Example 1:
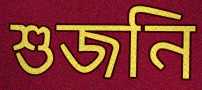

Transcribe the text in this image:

শুজনি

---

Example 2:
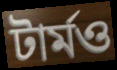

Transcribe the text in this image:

টার্মও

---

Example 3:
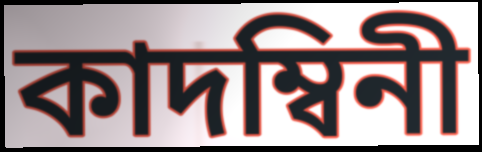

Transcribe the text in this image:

কাদম্বিনী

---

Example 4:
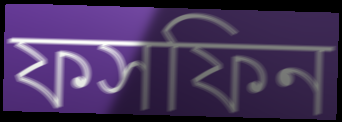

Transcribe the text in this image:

ফসফিন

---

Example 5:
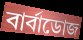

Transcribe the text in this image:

বার্বাডোজ